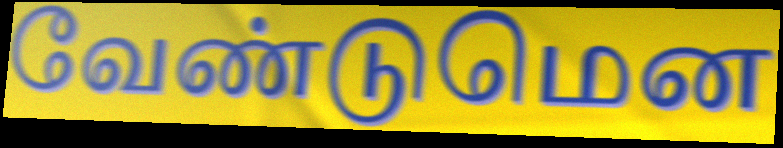
வேண்டுமென